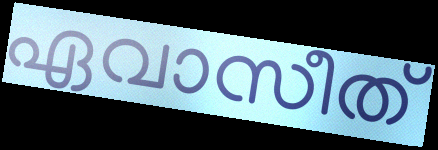
ഏവാസീത്